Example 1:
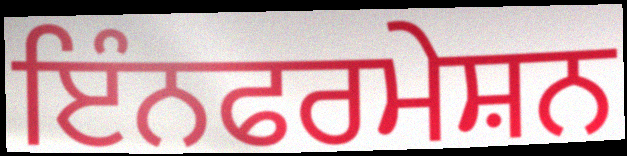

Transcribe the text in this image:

ਇੰਨਫਰਮੇਸ਼ਨ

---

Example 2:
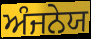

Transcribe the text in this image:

ਅੰਜਨੇਯ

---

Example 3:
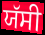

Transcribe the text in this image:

ਯੱਸੀ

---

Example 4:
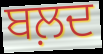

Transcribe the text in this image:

ਬਲ਼ਦ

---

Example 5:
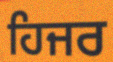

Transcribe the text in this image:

ਹਿਜਰ